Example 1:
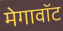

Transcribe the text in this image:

मेगावॉट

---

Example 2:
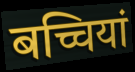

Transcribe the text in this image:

बच्चियां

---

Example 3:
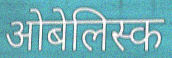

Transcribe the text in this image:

ओबेलिस्क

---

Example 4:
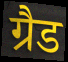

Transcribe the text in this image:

ग्रैड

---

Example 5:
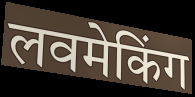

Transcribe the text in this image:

लवमेकिंग